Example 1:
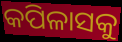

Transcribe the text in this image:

କପିଳାସକୁ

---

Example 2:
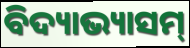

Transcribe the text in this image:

ବିଦ୍ୟାଭ୍ୟାସମ୍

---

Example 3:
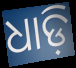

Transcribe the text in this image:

ଧାଡ଼ି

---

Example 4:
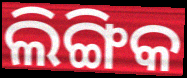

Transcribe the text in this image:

ଲିଙ୍ଗିକ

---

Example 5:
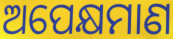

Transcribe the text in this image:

ଅପେକ୍ଷମାଣ